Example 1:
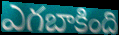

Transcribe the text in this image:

ఎగబాకింది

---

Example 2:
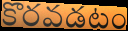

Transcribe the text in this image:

కొరవడటం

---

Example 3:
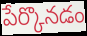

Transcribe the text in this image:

పేర్కొనడం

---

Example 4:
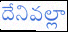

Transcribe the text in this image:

దేనివల్లా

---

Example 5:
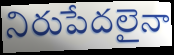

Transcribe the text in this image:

నిరుపేదలైనా